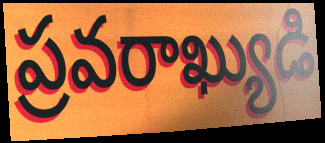
ప్రవరాఖ్యుడి